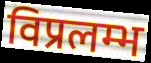
विप्रलम्भ